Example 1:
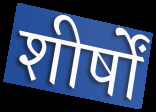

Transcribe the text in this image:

शीर्षों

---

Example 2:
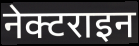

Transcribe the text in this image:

नेक्टराइन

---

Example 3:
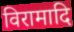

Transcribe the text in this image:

विरामादि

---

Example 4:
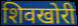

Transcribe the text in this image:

शिवखोरी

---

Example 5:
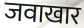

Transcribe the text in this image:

जवाखार